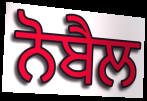
ਨੋਬੈਲ